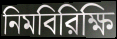
নিমবিরিক্ষি